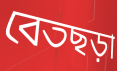
বেতছড়া